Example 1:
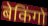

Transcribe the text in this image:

बेकिंगो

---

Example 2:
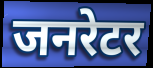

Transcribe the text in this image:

जनरेटर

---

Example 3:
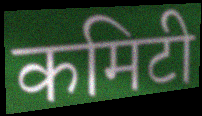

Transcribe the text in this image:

कमिटी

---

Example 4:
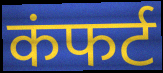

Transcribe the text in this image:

कंफर्ट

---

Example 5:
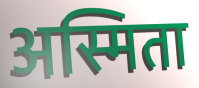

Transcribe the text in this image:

अस्मिता